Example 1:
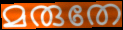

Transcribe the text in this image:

മരുതേ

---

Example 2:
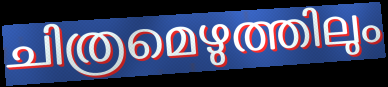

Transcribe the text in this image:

ചിത്രമെഴുത്തിലും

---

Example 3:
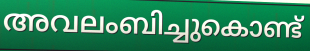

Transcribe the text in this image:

അവലംബിച്ചുകൊണ്ട്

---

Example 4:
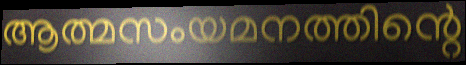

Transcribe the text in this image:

ആത്മസംയമനത്തിന്റെ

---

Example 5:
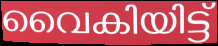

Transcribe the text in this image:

വൈകിയിട്ട്